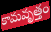
కామవృత్తం